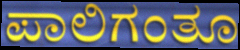
ಪಾಲಿಗಂತೂ